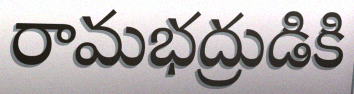
రామభద్రుడికి